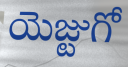
యెజ్టుగో